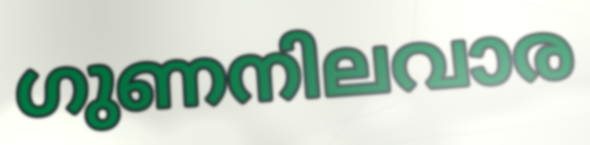
ഗുണനിലവാര